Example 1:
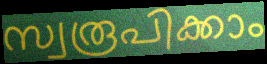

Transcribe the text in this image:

സ്വരൂപിക്കാം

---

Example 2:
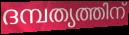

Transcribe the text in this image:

ദമ്പത്യത്തിന്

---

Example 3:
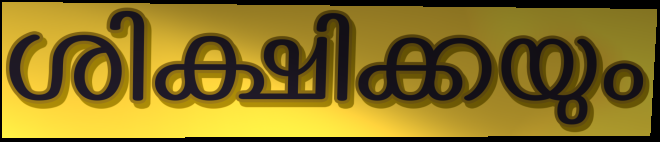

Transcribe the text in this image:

ശിക്ഷിക്കയും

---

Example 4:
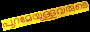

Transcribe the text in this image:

പുറമേയുള്ളവരുടെ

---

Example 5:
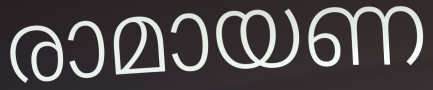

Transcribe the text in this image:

രാമായണ